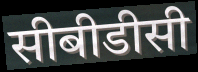
सीबीडीसी